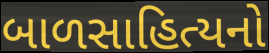
બાળસાહિત્યનો